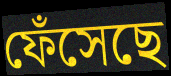
ফেঁসেছে